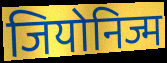
जियोनिज्म